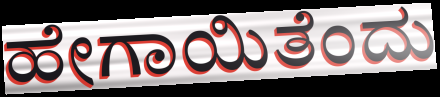
ಹೇಗಾಯಿತೆಂದು